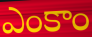
ఎంకాం